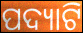
ପଦ୍ୟାଟି